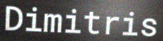
Dimitris